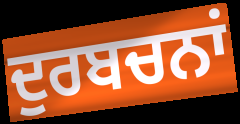
ਦੁਰਬਚਨਾਂ